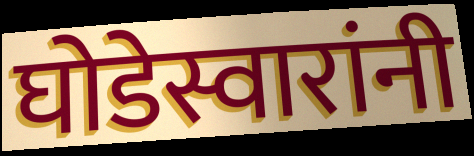
घोडेस्वारांनी